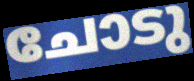
ചോടു